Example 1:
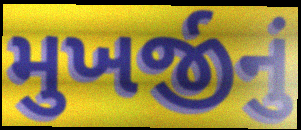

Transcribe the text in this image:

મુખર્જીનું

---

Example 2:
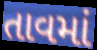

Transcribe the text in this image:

તાવમાં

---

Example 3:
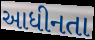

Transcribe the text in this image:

આધીનતા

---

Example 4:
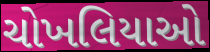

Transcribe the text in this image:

ચોખલિયાઓ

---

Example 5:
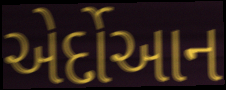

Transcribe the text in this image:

એર્દોઆન